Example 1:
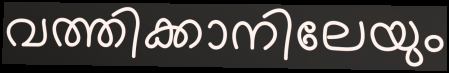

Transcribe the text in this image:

വത്തിക്കാനിലേയും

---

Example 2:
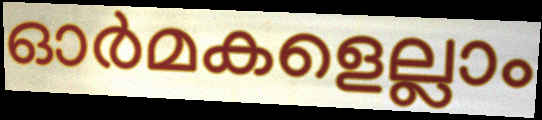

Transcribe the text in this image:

ഓർമകളെല്ലാം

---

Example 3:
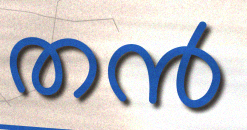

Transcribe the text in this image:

തൻ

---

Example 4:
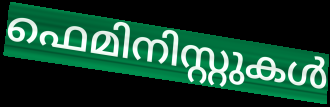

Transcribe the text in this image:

ഫെമിനിസ്റ്റുകൾ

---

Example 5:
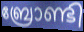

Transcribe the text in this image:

ബ്രോണ്ടി